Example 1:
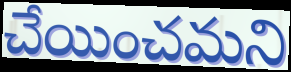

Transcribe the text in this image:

చేయించమని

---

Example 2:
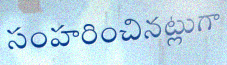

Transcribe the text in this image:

సంహరించినట్లుగా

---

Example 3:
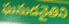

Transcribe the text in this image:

ఘనుడనైతిని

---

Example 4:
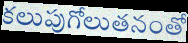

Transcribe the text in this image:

కలుపుగోలుతనంతో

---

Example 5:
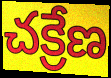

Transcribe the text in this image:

చక్రేణ